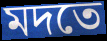
মদতে